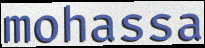
mohassa